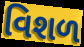
વિશળ